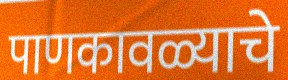
पाणकावळ्याचे